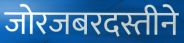
जोरजबरदस्तीने